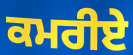
ਕਮਰੀਏ